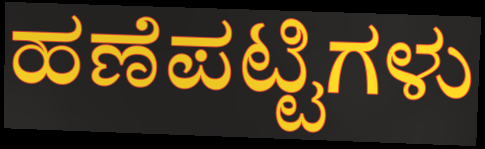
ಹಣೆಪಟ್ಟಿಗಳು